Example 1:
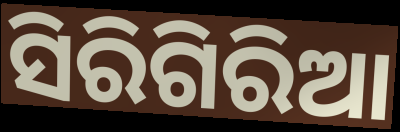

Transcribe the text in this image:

ସିରିଗିରିଆ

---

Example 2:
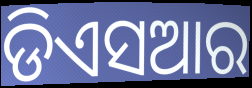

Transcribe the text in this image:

ଡିଏସଆର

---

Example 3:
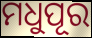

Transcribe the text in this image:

ମଧୁପୂର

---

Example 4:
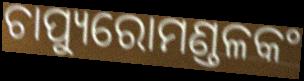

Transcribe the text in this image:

ଚାପ୍ୟୁରୋମଣ୍ଡଳକଂ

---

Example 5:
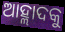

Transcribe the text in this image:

ଆହ୍ଲାଦକୁ